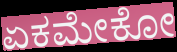
ಏಕಮೇಕೋ